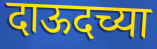
दाऊदच्या